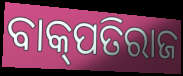
ବାକ୍‌ପତିରାଜ